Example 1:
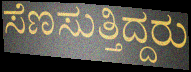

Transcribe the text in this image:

ಸೆಣಸುತ್ತಿದ್ದರು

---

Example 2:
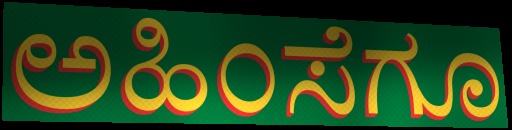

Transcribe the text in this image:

ಅಹಿಂಸೆಗೂ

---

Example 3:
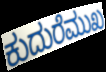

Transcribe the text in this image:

ಕುದುರೆಮುಖ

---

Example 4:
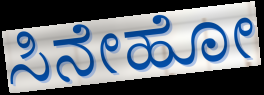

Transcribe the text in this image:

ಸಿನೇಹೋ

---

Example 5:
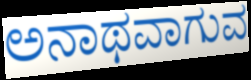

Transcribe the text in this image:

ಅನಾಥವಾಗುವ